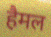
हैमल